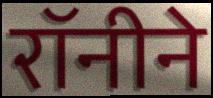
रॉनीने